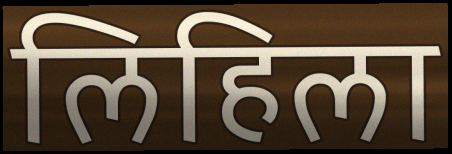
लिहिला